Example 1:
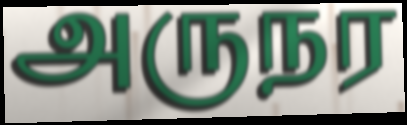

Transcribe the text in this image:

அருநர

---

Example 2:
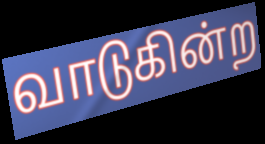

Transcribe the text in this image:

வாடுகின்ற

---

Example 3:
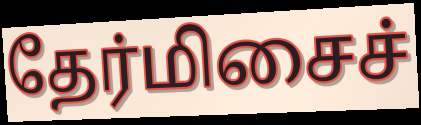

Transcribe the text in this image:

தேர்மிசைச்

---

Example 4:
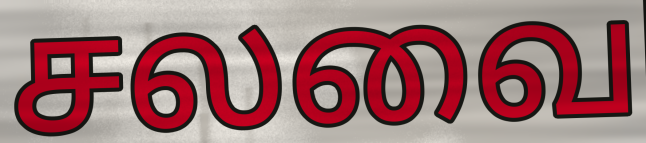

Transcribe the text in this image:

சலவை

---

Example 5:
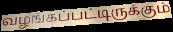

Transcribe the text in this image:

வழங்கப்பட்டிருக்கும்